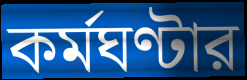
কর্মঘণ্টার